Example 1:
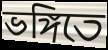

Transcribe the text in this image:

ভঙ্গিতে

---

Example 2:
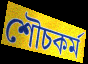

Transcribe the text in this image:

শৌচকর্ম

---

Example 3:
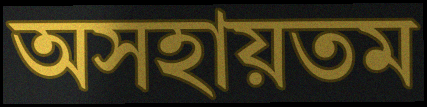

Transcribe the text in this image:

অসহায়তম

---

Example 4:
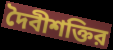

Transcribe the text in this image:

দৈবীশক্তির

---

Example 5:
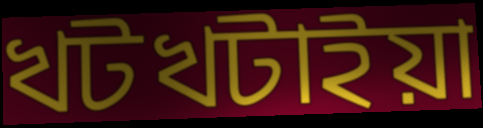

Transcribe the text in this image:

খটখটাইয়া